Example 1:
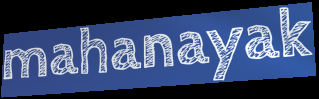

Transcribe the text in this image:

mahanayak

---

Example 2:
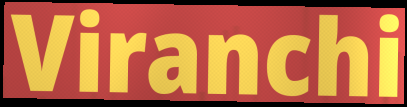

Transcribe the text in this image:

Viranchi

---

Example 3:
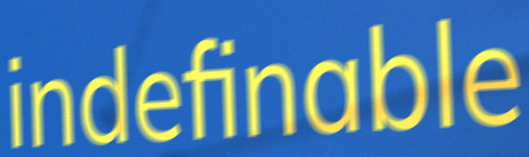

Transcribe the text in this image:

indefinable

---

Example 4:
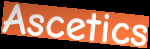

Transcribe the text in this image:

Ascetics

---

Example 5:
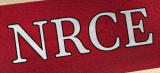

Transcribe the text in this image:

NRCE